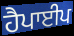
ਹੈਪਾਈਪ